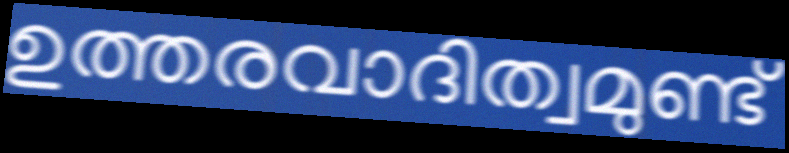
ഉത്തരവാദിത്വമുണ്ട്